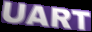
UART